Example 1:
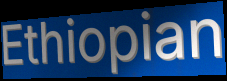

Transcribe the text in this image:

Ethiopian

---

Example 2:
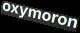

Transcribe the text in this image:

oxymoron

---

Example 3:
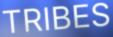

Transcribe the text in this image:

TRIBES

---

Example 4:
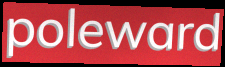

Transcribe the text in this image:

poleward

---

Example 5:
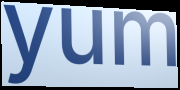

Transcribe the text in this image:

yum